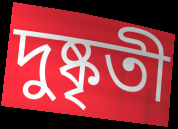
দুষ্কৃতী